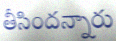
తీసిందన్నారు